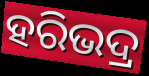
ହରିଭଦ୍ର